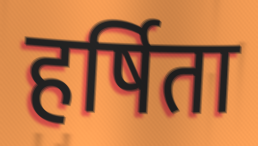
हर्षिता